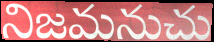
నిజమనుచు